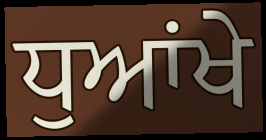
ਧੁਆਂਖੇ